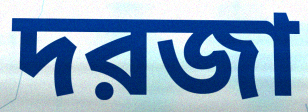
দরজা